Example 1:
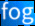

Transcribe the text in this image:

fog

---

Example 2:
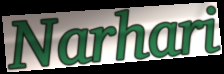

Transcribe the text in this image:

Narhari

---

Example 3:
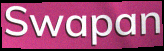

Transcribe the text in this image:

Swapan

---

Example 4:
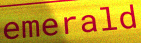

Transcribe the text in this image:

emerald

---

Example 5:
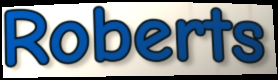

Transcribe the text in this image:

Roberts